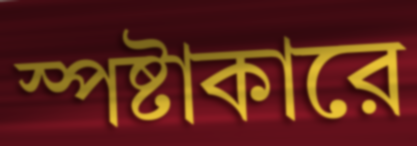
স্পষ্টাকারে